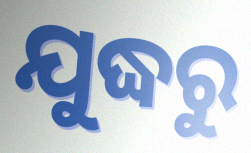
ଯୁଦ୍ଧରୁ